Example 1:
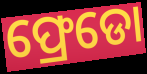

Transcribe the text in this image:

ଫ୍ରେଡୋ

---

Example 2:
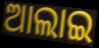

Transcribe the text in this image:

ଆଲାଇ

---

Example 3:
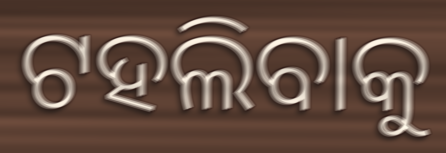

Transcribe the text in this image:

ଟହଲିବାକୁ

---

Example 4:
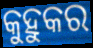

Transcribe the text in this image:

କୁହୁକର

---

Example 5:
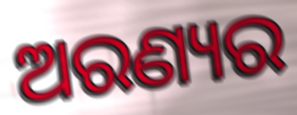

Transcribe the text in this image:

ଅରଣ୍ୟର